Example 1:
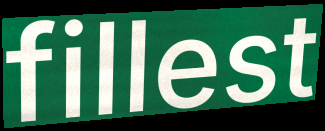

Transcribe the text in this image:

fillest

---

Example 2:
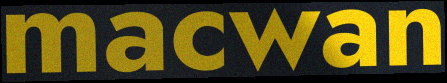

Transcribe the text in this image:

macwan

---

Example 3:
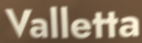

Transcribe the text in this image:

Valletta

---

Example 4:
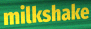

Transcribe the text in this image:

milkshake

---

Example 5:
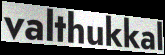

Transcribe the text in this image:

valthukkal